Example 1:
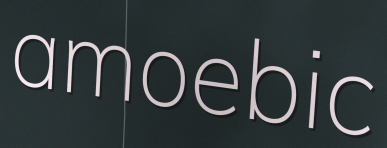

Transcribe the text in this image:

amoebic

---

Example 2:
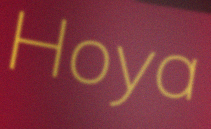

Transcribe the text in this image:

Hoya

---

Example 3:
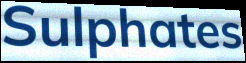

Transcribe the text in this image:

Sulphates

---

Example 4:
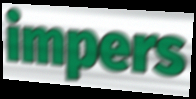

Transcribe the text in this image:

impers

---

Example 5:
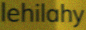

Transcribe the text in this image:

lehilahy